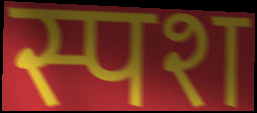
स्पश